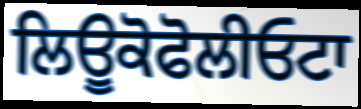
ਲਿਊਕੋਫੋਲੀਓਟਾ